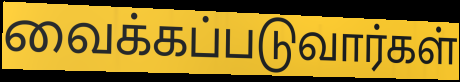
வைக்கப்படுவார்கள்